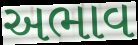
અભાવ